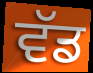
ਵੱਡ